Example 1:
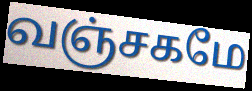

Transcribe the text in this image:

வஞ்சகமே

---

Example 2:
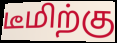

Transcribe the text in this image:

டீமிற்கு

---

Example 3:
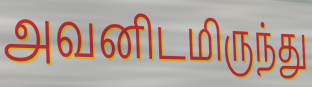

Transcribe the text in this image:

அவனிடமிருந்து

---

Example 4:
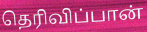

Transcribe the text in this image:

தெரிவிப்பான்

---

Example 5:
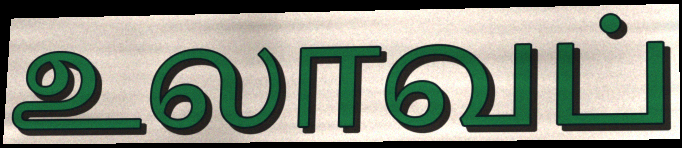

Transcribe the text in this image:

உலாவப்